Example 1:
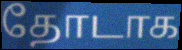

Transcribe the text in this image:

தோடாக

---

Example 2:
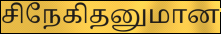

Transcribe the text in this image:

சிநேகிதனுமான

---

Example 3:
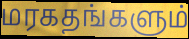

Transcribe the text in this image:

மரகதங்களும்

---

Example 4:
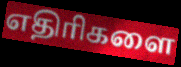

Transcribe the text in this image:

எதிரிகளை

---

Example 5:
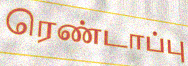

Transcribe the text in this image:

ரெண்டாப்பு